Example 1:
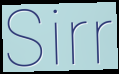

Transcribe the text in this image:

Sirr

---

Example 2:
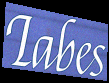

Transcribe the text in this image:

Iabes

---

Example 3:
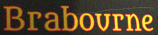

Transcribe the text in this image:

Brabourne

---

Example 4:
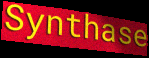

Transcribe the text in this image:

Synthase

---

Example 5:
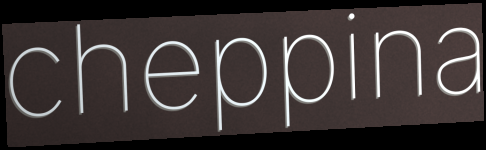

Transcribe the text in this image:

cheppina